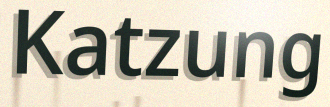
Katzung